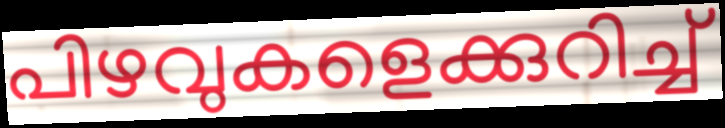
പിഴവുകളെക്കുറിച്ച്